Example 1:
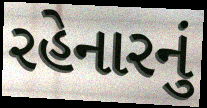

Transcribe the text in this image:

રહેનારનું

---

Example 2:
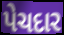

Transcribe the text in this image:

પેચદાર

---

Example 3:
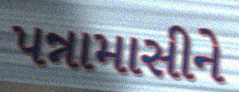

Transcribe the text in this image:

પન્નામાસીને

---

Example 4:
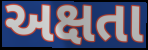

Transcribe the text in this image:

અક્ષતા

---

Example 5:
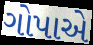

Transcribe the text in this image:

ગોપાએ